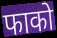
फाको